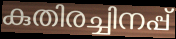
കുതിരച്ചിനപ്പ്